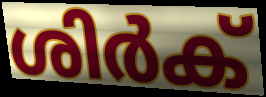
ശിർക്